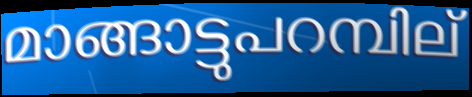
മാങ്ങാട്ടുപറമ്പില്